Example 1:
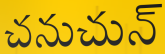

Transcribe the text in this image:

చనుచున్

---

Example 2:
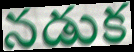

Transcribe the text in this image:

నడుక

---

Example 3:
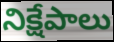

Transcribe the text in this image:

నిక్షేపాలు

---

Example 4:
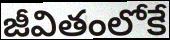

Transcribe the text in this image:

జీవితంలోకే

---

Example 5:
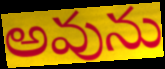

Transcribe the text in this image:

అవును